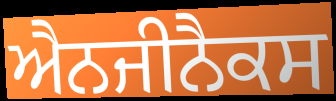
ਐਨਜੀਨੈਕਸ